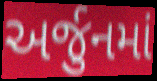
અર્જુનમાં